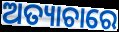
ଅତ୍ୟାଚାରେ